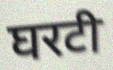
घरटी